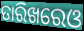
ତାରିଖରେଓ